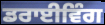
ਡਰਾਈਵਿੰਗ